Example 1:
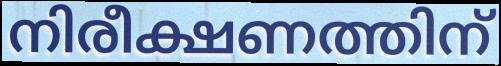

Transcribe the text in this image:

നിരീക്ഷണത്തിന്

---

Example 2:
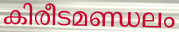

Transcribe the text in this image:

കിരീടമണ്ഡലം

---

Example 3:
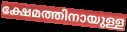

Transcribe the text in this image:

ക്ഷേമത്തിനായുള്ള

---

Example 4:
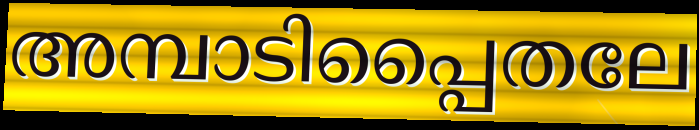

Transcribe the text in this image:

അമ്പാടിപ്പൈതലേ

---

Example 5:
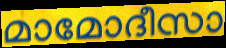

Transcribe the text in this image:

മാമോദീസാ